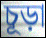
চূড়া